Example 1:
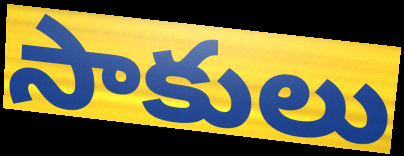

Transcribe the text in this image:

సాకులు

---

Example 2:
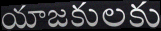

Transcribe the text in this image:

యాజకులకు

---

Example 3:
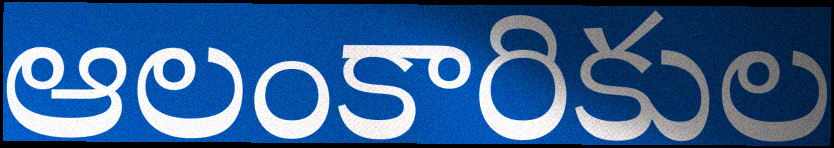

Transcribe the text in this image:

ఆలంకారికుల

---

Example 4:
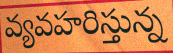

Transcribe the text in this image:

వ్యవహరిస్తున్న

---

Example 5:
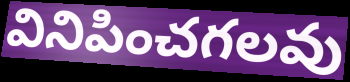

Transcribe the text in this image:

వినిపించగలవు